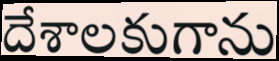
దేశాలకుగాను